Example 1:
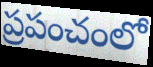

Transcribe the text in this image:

ప్రపంచంలో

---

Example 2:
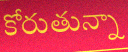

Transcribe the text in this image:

కోరుతున్నా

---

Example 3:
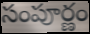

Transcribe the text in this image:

సంపూర్ణం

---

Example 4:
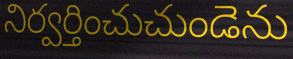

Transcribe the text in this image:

నిర్వర్తించుచుండెను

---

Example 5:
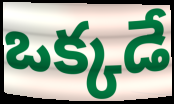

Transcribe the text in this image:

ఒక్కడే